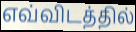
எவ்விடத்தில்